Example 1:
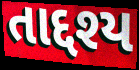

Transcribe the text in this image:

તાદ્દશ્ય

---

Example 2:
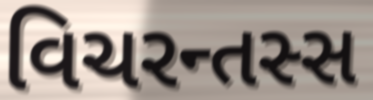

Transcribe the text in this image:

વિચરન્તસ્સ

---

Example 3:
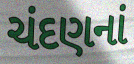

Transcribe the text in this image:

ચંદણનાં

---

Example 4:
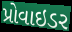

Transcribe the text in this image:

પ્રોવાઇડર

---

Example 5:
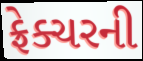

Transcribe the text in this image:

ફ્રેક્ચરની